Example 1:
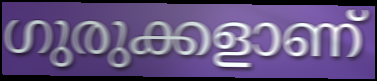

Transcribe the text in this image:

ഗുരുക്കളാണ്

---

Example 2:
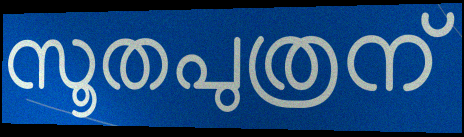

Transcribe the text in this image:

സൂതപുത്രന്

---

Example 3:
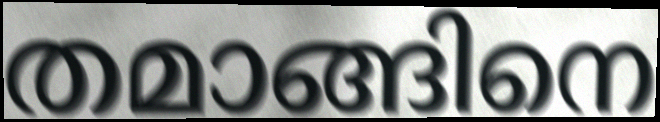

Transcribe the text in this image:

തമാങ്ങിനെ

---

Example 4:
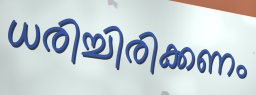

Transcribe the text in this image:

ധരിച്ചിരിക്കണം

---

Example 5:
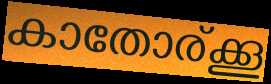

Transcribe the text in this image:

കാതോര്ക്കൂ